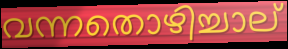
വന്നതൊഴിച്ചാല്